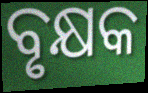
ବୃକ୍ଷକ